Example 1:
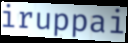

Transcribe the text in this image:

iruppai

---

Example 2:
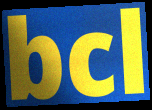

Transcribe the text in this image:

bcl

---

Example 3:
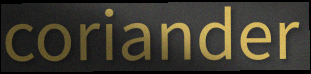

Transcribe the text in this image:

coriander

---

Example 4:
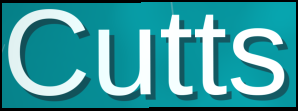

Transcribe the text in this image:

Cutts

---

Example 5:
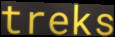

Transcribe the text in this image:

treks